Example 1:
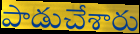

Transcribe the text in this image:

పాడుచేశారు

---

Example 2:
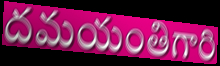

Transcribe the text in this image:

దమయంతిగారి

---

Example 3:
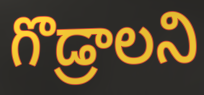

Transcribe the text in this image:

గొడ్రాలని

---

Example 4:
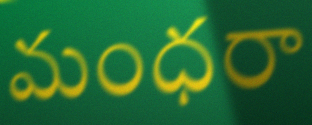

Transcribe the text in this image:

మంధరా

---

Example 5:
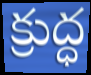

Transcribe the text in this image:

క్రుద్ధ